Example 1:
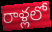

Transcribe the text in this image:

రాళ్లలో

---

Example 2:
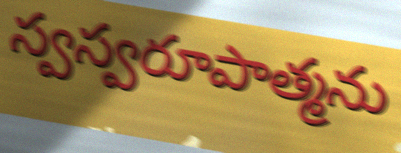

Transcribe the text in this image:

స్వస్వరూపాత్మను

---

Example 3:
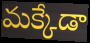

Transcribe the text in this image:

మక్కేడా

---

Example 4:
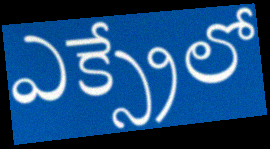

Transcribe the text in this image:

ఎక్స్రేలో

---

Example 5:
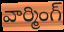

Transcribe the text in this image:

వార్మింగ్